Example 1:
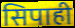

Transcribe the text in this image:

सिपाही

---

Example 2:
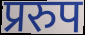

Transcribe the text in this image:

प्ररुप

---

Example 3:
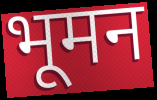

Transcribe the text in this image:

भूमन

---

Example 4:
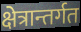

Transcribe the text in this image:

क्षेत्रान्‍तर्गत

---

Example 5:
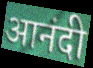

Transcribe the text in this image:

आनंदी